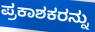
ಪ್ರಕಾಶಕರನ್ನು